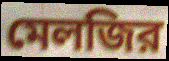
মেলজির